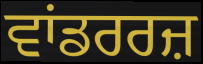
ਵਾਂਡਰਰਜ਼